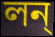
লন্